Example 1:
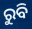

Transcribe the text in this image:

ରୁବି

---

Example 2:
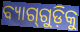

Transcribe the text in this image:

ବ୍ୟାଗ୍‍ଗୁଡ଼ିକୁ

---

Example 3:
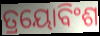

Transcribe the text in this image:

ତ୍ରୟୋବିଂଶ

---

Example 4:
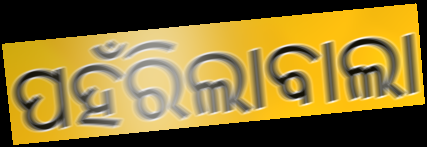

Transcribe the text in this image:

ପହଁରିଲାବାଲା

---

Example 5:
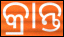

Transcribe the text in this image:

କ୍ରାନ୍ତ